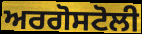
ਅਰਗੋਸਟੋਲੀ